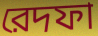
রেদফা